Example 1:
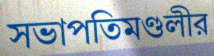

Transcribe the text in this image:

সভাপতিমণ্ডলীর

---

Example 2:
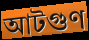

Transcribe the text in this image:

আটগুণ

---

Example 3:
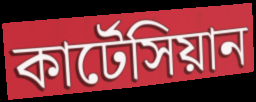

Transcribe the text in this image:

কার্টেসিয়ান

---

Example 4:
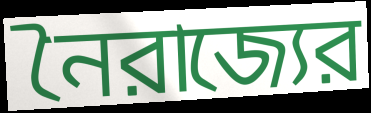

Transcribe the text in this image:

নৈরাজ্যের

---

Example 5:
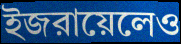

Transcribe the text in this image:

ইজরায়েলেও